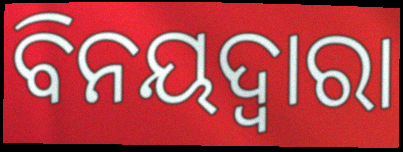
ବିନୟଦ୍ୱାରା